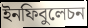
ইনফিবুলেচন